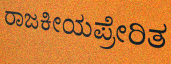
ರಾಜಕೀಯಪ್ರೇರಿತ